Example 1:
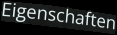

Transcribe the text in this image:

Eigenschaften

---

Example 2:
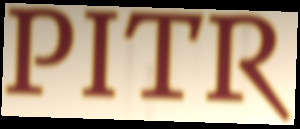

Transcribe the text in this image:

PITR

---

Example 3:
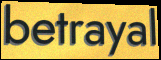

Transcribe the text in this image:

betrayal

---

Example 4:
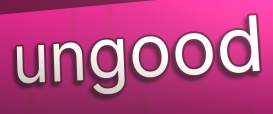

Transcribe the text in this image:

ungood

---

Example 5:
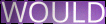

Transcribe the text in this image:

WOULD